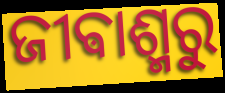
ଜୀଵାଶ୍ମରୁ